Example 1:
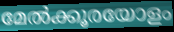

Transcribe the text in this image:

മേൽക്കൂരയോളം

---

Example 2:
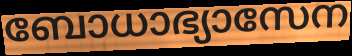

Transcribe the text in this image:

ബോധാഭ്യാസേന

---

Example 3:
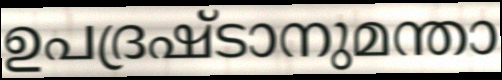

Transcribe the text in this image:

ഉപദ്രഷ്ടാനുമന്താ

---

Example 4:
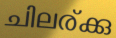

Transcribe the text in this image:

ചിലര്ക്കു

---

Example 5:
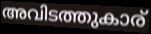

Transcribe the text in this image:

അവിടത്തുകാര്